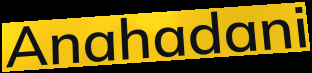
Anahadani